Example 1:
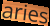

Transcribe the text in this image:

aries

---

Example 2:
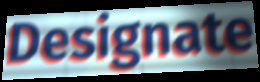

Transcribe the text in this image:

Designate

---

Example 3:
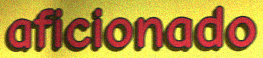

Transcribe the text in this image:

aficionado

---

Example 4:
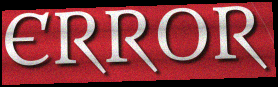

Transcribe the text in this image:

ERROR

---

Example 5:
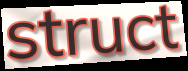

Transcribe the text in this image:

struct